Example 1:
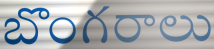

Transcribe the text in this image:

బొంగరాలు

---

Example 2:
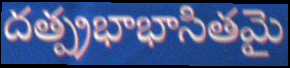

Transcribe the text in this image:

దత్ప్రభాభాసితమై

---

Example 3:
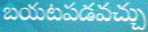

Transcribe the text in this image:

బయటపడవచ్చు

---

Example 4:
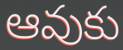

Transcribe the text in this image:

ఆవుకు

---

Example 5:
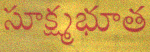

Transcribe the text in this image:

సూక్ష్మభూత